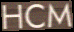
HCM